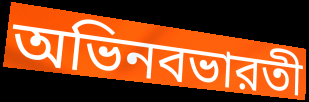
অভিনবভারতী